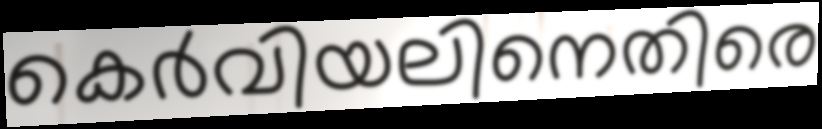
കെർവിയലിനെതിരെ